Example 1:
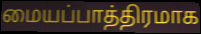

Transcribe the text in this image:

மையப்பாத்திரமாக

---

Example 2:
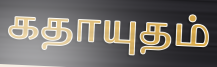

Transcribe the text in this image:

கதாயுதம்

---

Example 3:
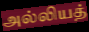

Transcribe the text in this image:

அல்லியத்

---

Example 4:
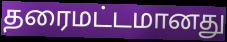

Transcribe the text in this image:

தரைமட்டமானது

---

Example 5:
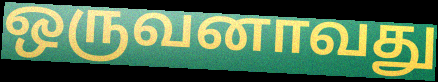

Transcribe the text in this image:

ஒருவனாவது